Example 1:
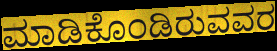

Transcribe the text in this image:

ಮಾಡಿಕೊಂಡಿರುವವರ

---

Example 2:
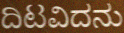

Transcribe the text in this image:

ದಿಟವಿದನು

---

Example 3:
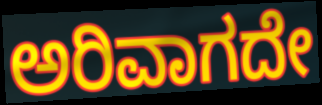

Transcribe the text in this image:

ಅರಿವಾಗದೇ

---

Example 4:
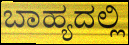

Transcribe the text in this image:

ಬಾಹ್ಯದಲ್ಲಿ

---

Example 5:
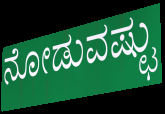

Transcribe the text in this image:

ನೋಡುವಷ್ಟು